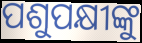
ପଶୁପକ୍ଷୀଙ୍କୁ